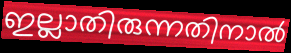
ഇല്ലാതിരുന്നതിനാൽ